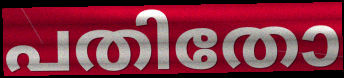
പതിതോ